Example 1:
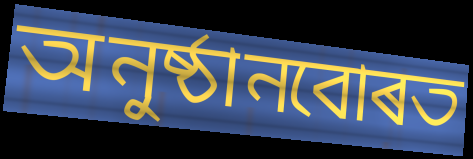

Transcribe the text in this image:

অনুষ্ঠানবোৰত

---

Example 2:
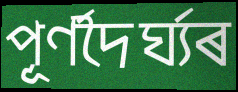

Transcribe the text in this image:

পূৰ্ণদৈৰ্ঘ্যৰ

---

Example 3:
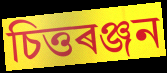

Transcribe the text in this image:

চিত্তৰঞ্জন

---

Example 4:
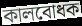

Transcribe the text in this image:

কালবোধক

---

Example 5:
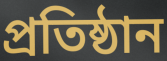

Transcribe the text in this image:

প্ৰতিষ্ঠান